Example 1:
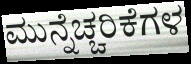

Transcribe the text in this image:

ಮುನ್ನೆಚ್ಚರಿಕೆಗಳ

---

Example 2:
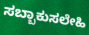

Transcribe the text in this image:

ಸಬ್ಬಾಕುಸಲೇಹಿ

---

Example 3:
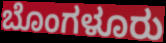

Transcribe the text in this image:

ಬೊಂಗಳೂರು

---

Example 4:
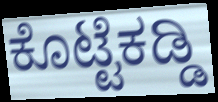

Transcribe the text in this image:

ಕೊಟ್ಟೆಕಡ್ಡಿ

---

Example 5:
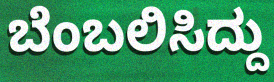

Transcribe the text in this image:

ಬೆಂಬಲಿಸಿದ್ದು